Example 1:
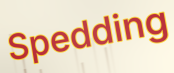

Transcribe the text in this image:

Spedding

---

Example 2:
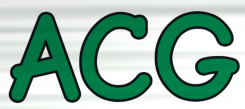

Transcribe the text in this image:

ACG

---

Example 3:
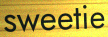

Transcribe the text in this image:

sweetie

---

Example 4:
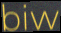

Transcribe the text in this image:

biw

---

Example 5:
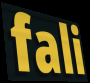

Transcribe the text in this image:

fali